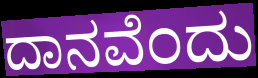
ದಾನವೆಂದು